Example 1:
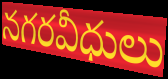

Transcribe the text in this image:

నగరవీధులు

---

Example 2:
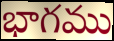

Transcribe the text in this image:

భాగము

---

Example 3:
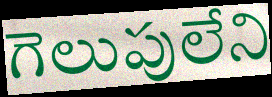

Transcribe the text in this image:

గెలుపులేని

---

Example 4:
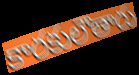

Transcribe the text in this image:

కారకులౌతారు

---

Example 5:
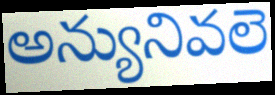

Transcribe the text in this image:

అన్యునివలె